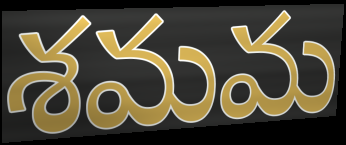
శమమ